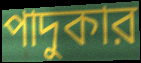
পাদুকার